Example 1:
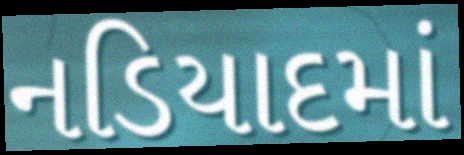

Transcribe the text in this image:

નડિયાદમાં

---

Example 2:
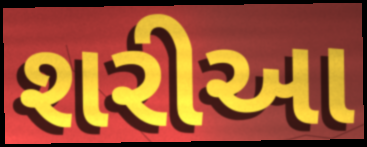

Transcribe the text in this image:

શરીઆ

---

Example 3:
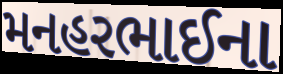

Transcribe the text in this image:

મનહરભાઈના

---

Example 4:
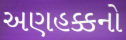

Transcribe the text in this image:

અણહક્કનો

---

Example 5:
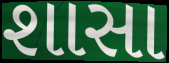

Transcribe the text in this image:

શાસા